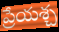
ప్రేయశ్చ